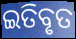
ଇତିବୃତ